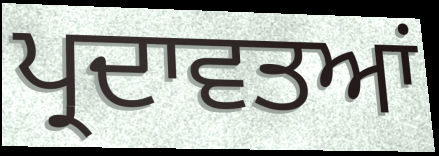
ਪ੍ਰਦਾਵਤਆਂ